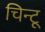
चिन्टू